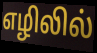
எழிலில்